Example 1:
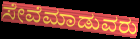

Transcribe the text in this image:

ಸೇವೆಮಾಡುವರು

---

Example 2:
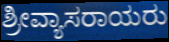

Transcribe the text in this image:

ಶ್ರೀವ್ಯಾಸರಾಯರು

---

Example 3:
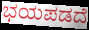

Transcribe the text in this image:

ಭಯಪಡದೆ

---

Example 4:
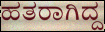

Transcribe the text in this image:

ಹತರಾಗಿದ್ದ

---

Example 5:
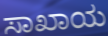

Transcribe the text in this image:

ಸಾಖಾಯ